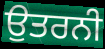
ਉਤਰਨੀ